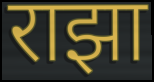
राझा